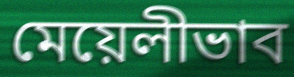
মেয়েলীভাব